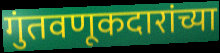
गुंतवणूकदारांच्या